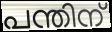
പന്തിന്